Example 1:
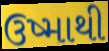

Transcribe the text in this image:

ઉષ્માથી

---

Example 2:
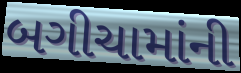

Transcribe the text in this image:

બગીચામાંની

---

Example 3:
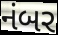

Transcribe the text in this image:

નંબર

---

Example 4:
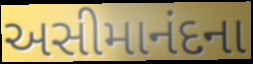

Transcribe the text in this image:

અસીમાનંદના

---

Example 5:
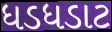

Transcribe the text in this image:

ધડધડાટ